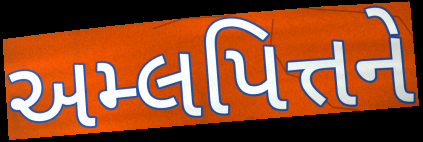
અમ્લપિત્તને